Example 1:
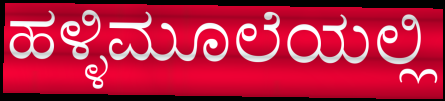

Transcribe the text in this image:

ಹಳ್ಳಿಮೂಲೆಯಲ್ಲಿ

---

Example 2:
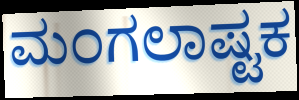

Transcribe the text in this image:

ಮಂಗಲಾಷ್ಟಕ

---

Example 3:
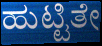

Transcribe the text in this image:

ಹುಟ್ಟಿತೇ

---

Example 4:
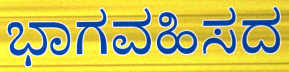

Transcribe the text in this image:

ಭಾಗವಹಿಸದ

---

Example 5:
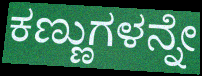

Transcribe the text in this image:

ಕಣ್ಣುಗಳನ್ನೇ